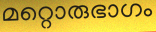
മറ്റൊരുഭാഗം